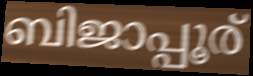
ബിജാപ്പൂര്